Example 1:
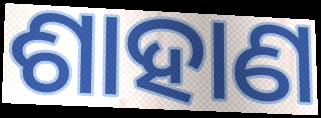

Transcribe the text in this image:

ଶାହାଣ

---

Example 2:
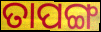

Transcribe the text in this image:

ତାପଙ୍ଗ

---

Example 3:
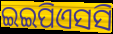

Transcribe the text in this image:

ଇଇପିଏସସି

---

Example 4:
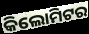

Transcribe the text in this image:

କିଲୋମିଟର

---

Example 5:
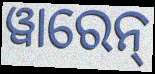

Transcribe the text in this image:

ୱାରେନ୍